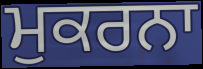
ਮੁਕਰਨਾ